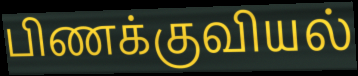
பிணக்குவியல்